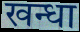
खन्धा